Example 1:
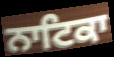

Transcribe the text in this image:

ਨਾਟਿਕਾ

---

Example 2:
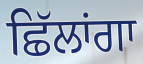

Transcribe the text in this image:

ਛਿੱਲਾਂਗਾ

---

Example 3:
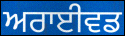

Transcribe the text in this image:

ਅਰਾਈਵਡ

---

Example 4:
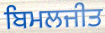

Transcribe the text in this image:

ਬਿਮਲਜੀਤ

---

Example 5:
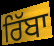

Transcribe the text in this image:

ਰਿੱਬਾ